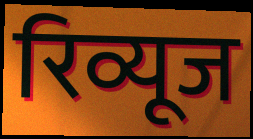
रिव्यूज